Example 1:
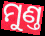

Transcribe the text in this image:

ମୁଣ୍ତ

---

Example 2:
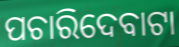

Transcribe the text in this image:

ପଚାରିଦେବାଟା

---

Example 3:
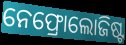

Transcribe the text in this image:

ନେଫ୍ରୋଲୋଜିଷ୍ଟ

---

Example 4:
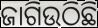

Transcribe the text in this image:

ଜାଗିଉଠିଛି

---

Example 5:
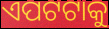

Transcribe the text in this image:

ଏପଟଟାକୁ